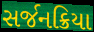
સર્જનક્રિયા